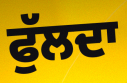
ਫੁੱਲਦਾ